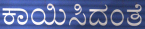
ಕಾಯಿಸಿದಂತೆ